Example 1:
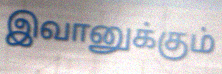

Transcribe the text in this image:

இவானுக்கும்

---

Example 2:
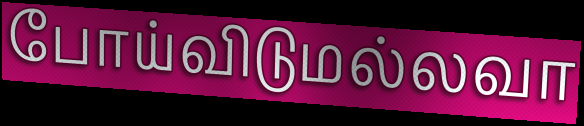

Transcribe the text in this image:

போய்விடுமல்லவா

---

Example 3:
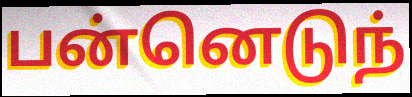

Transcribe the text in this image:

பன்னெடுந்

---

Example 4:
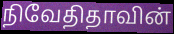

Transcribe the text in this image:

நிவேதிதாவின்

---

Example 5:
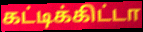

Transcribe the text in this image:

கட்டிக்கிட்டா